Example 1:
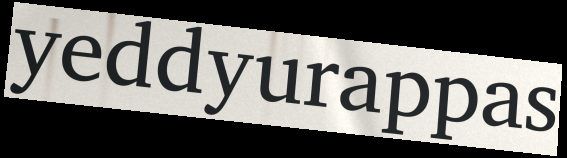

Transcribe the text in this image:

yeddyurappas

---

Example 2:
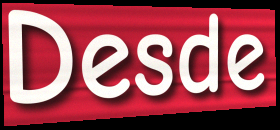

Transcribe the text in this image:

Desde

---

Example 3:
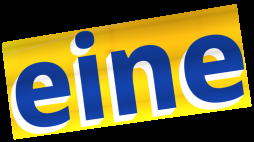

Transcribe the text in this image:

eine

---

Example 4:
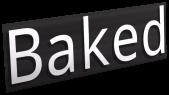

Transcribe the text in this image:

Baked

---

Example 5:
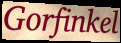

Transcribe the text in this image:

Gorfinkel